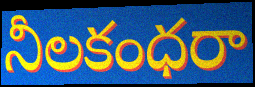
నీలకంధరా